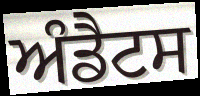
ਅੰਡੈਟਸ